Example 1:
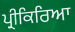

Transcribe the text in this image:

ਪ੍ਰੀਕਿਰਿਆ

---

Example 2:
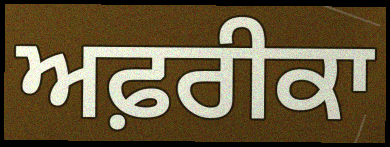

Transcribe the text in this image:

ਅਫ਼ਰੀਕਾ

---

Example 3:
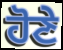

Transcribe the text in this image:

ਹੋਣੇ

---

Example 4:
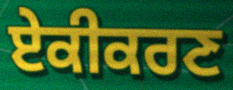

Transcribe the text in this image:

ਏਕੀਕਰਣ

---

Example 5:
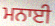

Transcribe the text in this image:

ਮਨਾਈ